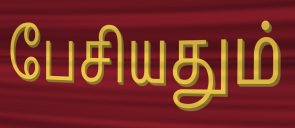
பேசியதும்